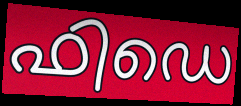
ഫിഡെ